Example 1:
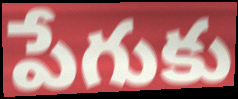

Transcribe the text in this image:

పేగుకు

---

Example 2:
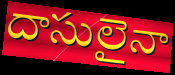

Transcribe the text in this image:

దాసులైనా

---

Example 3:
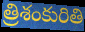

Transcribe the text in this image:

త్రిశంకురితి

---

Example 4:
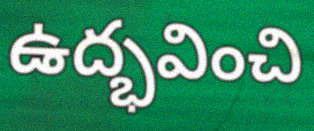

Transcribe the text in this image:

ఉద్భవించి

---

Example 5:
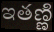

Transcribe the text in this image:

ఇతణ్ణి